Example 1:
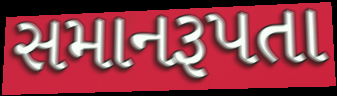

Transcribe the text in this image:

સમાનરૂપતા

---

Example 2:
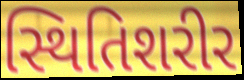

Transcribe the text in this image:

સ્થિતિશરીર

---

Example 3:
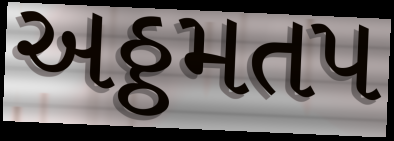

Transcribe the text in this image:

અઠ્ઠમતપ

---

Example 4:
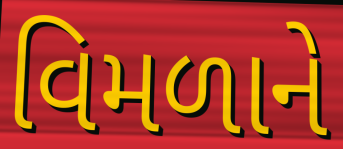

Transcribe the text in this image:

વિમળાને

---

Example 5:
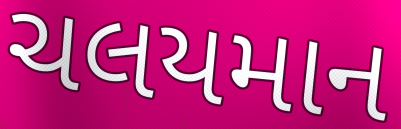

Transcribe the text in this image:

ચલયમાન